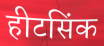
हीटसिंक